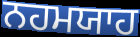
ਨਹਮਯਾਹ